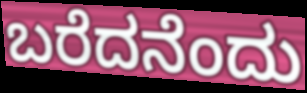
ಬರೆದನೆಂದು